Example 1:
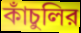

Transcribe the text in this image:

কাঁচুলির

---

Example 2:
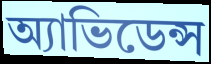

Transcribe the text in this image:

অ্যাভিডেন্স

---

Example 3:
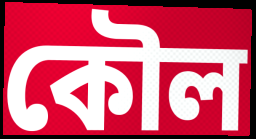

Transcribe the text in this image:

কৌল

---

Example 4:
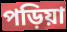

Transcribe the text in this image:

পড়িয়া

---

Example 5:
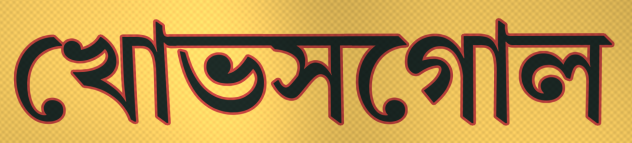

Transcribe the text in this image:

খোভসগোল